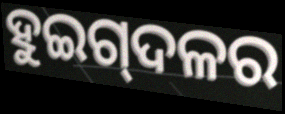
ହୁଇଗ୍‌ଦଳର